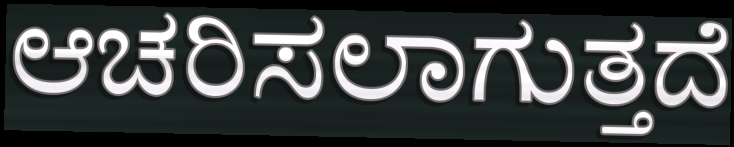
ಆಚರಿಸಲಾಗುತ್ತದೆ